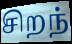
சிறந்